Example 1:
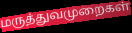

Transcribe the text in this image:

மருத்துவமுறைகள்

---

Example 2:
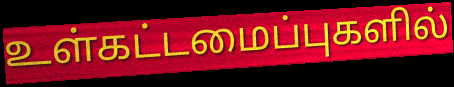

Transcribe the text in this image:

உள்கட்டமைப்புகளில்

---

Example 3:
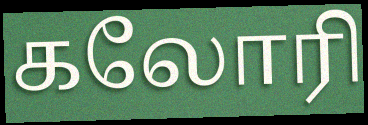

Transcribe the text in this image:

கலோரி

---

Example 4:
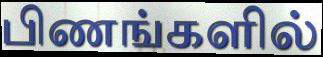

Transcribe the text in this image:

பிணங்களில்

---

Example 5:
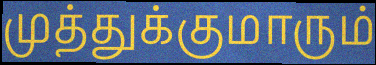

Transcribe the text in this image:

முத்துக்குமாரும்